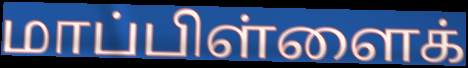
மாப்பிள்ளைக்